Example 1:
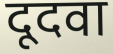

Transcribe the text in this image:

दूदवा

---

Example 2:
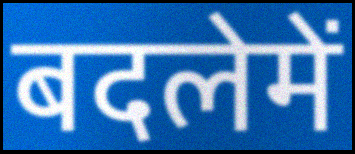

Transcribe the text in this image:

बदलेमें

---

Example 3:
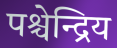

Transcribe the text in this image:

पश्चेन्द्रिय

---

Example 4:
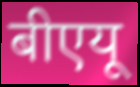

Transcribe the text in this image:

बीएयू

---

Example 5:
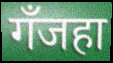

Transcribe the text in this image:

गँजहा